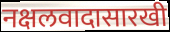
नक्षलवादासारखी